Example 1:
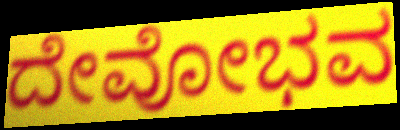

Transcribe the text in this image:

ದೇವೋಭವ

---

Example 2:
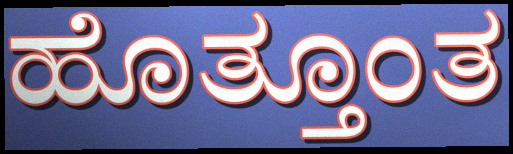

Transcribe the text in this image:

ಹೊತ್ತೂಂತ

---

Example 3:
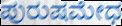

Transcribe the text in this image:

ಪುರುಷಮೇಧ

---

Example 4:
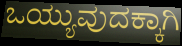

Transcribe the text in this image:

ಒಯ್ಯುವುದಕ್ಕಾಗಿ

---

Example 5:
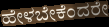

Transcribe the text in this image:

ಹೇಳಬೇಕೆಂದರೇ